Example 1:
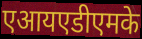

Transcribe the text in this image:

एआयएडीएमके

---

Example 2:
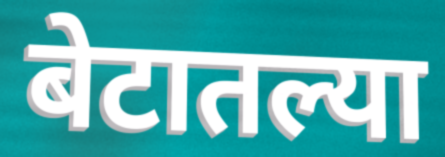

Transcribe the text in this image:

बेटातल्या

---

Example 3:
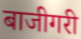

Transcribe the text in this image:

बाजीगरी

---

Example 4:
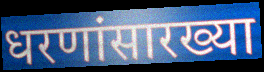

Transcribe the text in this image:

धरणांसारख्या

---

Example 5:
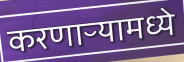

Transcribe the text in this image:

करणाऱ्यामध्ये